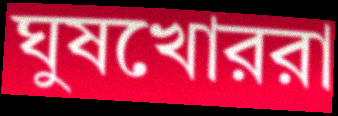
ঘুষখোররা